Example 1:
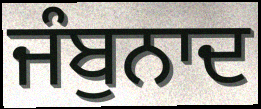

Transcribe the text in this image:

ਜੰਬੁਨਾਦ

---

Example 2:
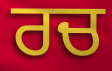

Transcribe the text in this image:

ਰਚ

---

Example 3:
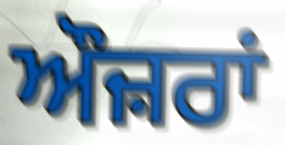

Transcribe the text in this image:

ਔਜ਼ਰਾਂ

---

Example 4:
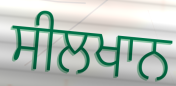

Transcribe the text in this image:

ਸੀਲਖਾਨ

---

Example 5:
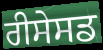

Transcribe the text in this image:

ਰੀਸੇਸਡ